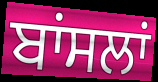
ਬਾਂਸਲਾਂ